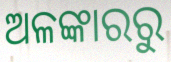
ଅଳଙ୍କାରରୁ